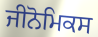
ਜੀਨੋਮਿਕਸ